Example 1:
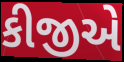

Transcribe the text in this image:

કીજીએ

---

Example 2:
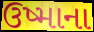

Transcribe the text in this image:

ઉષ્માના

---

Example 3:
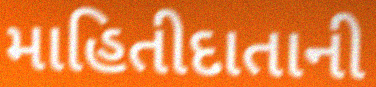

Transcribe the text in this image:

માહિતીદાતાની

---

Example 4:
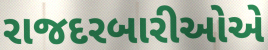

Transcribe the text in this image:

રાજદરબારીઓએ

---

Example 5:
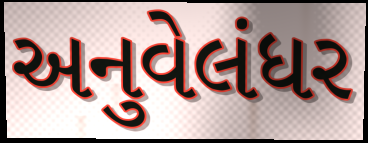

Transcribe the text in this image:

અનુવેલંધર